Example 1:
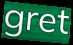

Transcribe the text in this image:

gret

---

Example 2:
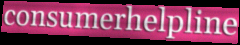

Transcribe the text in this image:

consumerhelpline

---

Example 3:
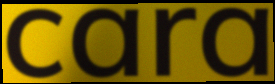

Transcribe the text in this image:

cara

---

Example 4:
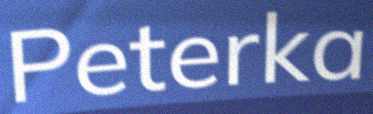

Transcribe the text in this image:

Peterka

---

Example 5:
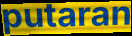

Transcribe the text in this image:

putaran